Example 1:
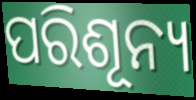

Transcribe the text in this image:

ପରିଶୂନ୍ୟ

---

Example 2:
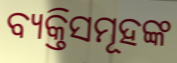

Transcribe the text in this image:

ବ୍ୟକ୍ତିସମୂହଙ୍କ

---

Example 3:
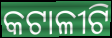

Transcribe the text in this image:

କଟାଳୀଟି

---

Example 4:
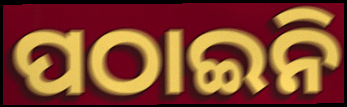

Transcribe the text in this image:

ପଠାଇନି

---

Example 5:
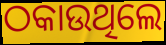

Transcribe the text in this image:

ଠକାଉଥିଲେ